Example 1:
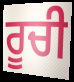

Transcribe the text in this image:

ਰੂਚੀ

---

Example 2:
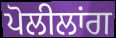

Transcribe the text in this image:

ਪੋਲੀਲਾਂਗ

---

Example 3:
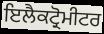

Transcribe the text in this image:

ਇਲੈਕਟ੍ਰੋਮੀਟਰ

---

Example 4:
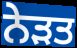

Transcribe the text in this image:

ਨੇੜਤ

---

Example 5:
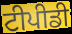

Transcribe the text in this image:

ਟੀਪੀਡੀ